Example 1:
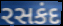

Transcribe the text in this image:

રસકંદ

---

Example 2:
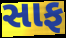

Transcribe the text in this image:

સાફ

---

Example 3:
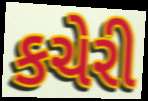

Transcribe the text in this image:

કચેરી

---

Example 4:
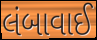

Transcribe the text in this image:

લંબાવાઈ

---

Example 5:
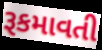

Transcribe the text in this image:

રૂકમાવતી